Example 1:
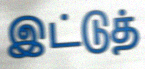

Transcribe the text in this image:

இட்டுத்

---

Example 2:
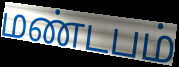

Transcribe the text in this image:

மண்டபம்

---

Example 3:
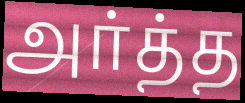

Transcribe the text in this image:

அர்த்த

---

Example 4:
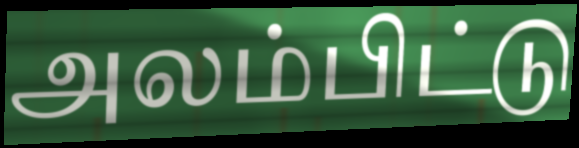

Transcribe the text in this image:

அலம்பிட்டு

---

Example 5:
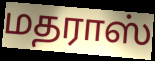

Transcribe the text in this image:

மதராஸ்